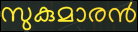
സുകുമാരൻ